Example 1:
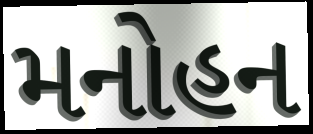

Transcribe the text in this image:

મનોહન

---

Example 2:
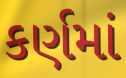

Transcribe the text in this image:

કર્ણમાં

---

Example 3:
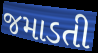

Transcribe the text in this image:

જમાડતી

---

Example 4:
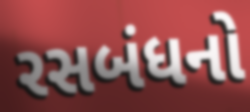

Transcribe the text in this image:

રસબંધનો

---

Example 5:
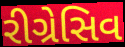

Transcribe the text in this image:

રીગ્રેસિવ